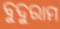
ବୁଦୁରାମ